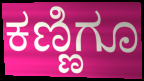
ಕಣ್ಣಿಗೂ